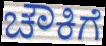
ಚೌಕಿಗೆ